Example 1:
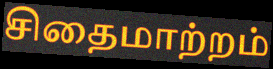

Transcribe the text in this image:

சிதைமாற்றம்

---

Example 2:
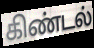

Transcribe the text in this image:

கிண்டல்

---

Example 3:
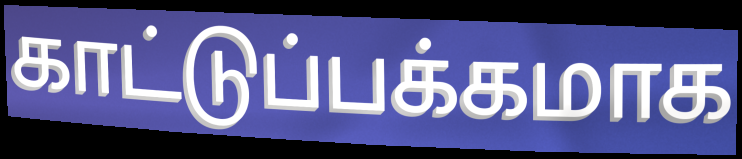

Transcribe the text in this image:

காட்டுப்பக்கமாக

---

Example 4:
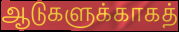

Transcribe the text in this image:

ஆடுகளுக்காகத்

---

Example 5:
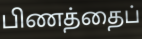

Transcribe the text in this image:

பிணத்தைப்